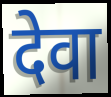
देवा